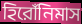
হিরোঁনিমাস